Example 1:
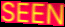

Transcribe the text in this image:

SEEN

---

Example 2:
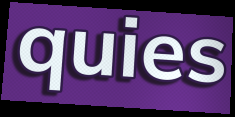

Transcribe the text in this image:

quies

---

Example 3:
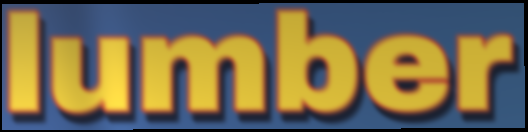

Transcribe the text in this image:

lumber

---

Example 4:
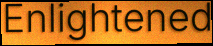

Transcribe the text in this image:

Enlightened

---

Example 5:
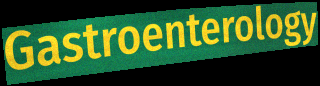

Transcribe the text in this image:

Gastroenterology